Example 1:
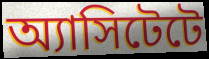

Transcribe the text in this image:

অ্যাসিটেটে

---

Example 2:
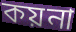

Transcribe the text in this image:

কয়না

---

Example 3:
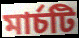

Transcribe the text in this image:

মার্চটি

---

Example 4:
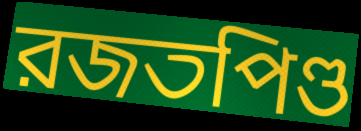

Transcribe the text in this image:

রজতপিণ্ড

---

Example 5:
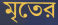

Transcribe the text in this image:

মৃতের